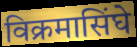
विक्रमासिंघे